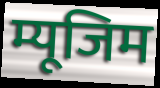
म्यूजिम